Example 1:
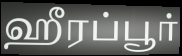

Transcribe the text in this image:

ஹீரப்பூர்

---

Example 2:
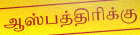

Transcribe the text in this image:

ஆஸ்பத்திரிக்கு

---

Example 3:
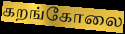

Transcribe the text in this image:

கறங்கோலை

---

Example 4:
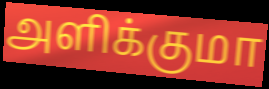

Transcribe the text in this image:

அளிக்குமா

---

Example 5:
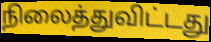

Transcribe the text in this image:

நிலைத்துவிட்டது